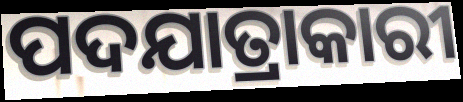
ପଦଯାତ୍ରାକାରୀ